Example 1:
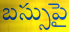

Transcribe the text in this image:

బస్సుపై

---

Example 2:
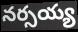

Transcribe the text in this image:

నర్సయ్య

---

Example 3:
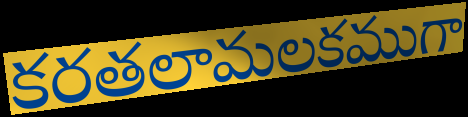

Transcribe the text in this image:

కరతలామలకముగా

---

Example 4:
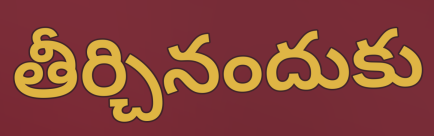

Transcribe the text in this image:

తీర్చినందుకు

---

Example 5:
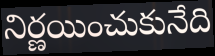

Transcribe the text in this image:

నిర్ణయించుకునేది